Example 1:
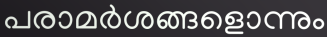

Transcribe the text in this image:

പരാമർശങ്ങളൊന്നും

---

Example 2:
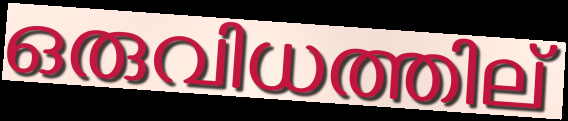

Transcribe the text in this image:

ഒരുവിധത്തില്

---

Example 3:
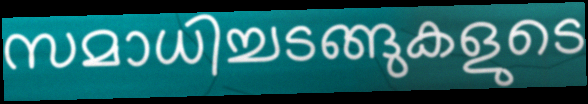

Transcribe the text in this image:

സമാധിച്ചടങ്ങുകളുടെ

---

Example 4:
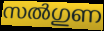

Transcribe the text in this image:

സൽഗുണ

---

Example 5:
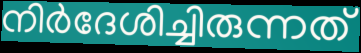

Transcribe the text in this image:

നിർദേശിച്ചിരുന്നത്